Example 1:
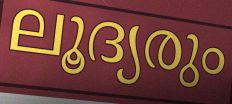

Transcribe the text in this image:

ലൂദ്യരും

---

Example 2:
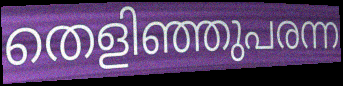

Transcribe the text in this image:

തെളിഞ്ഞുപരന്ന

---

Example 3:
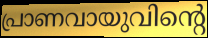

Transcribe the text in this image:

പ്രാണവായുവിന്റെ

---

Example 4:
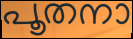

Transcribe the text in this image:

പൂതനാ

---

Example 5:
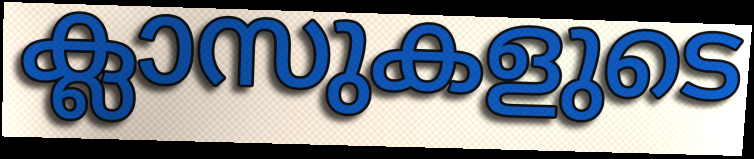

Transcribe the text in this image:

ക്ലാസുകളുടെ